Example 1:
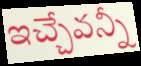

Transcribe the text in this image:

ఇచ్చేవన్నీ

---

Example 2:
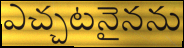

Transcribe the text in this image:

ఎచ్చటనైనను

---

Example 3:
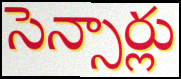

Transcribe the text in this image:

సెన్సార్లు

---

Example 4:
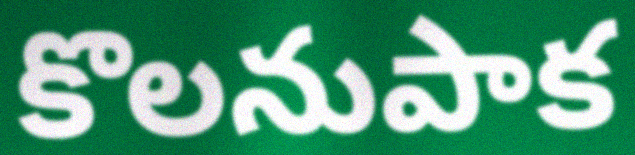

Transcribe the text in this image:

కొలనుపాక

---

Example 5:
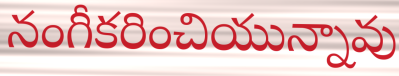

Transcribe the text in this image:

నంగీకరించియున్నావు